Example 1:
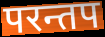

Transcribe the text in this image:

परन्तप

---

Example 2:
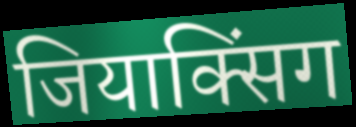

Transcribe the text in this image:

जियाक्सिंग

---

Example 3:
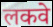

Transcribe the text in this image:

लकवे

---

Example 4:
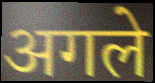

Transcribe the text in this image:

अगले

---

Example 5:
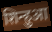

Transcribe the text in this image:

शिन्हुआ